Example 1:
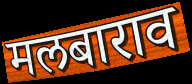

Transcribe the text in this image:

मलबाराव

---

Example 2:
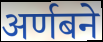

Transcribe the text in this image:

अर्णबने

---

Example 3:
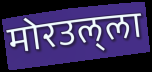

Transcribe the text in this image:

मोरउल्ला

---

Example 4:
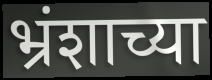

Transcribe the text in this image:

भ्रंशाच्या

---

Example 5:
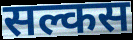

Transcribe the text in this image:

सल्कस